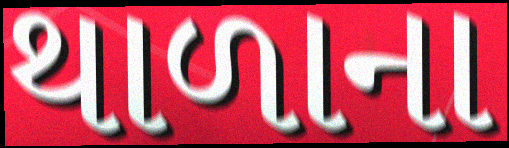
થાળાના